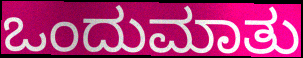
ಒಂದುಮಾತು